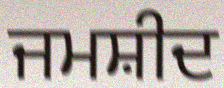
ਜਮਸ਼ੀਦ